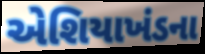
એશિયાખંડના